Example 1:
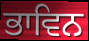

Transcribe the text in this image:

ਭਾਵਿਨ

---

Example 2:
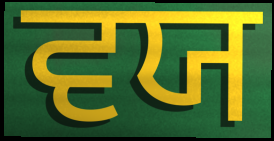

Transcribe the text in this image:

ਵਯ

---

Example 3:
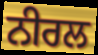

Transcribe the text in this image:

ਨੀਰਲ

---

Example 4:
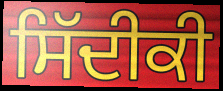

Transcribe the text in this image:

ਸਿੱਦੀਕੀ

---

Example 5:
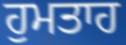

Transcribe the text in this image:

ਹੁਮਤਾਹ